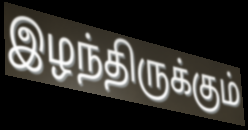
இழந்திருக்கும்